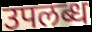
उपलब्ध